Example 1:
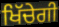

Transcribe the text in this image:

ਖਿੱਚੇਗੀ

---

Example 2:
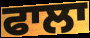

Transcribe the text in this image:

ਫਾਲਾ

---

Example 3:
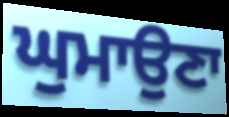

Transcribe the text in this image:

ਘੁਮਾਉਣਾ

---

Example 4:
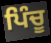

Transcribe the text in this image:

ਪਿੰਚੂ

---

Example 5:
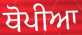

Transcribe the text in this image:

ਥੋਪੀਆ